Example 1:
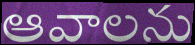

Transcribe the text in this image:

ఆవాలను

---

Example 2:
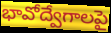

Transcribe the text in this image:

భావోద్వేగాలపై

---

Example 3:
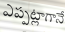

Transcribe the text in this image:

ఎప్పట్లాగానే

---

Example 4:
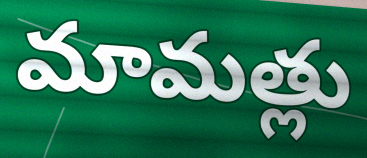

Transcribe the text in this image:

మామత్లు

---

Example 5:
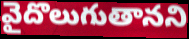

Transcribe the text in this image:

వైదొలుగుతానని